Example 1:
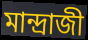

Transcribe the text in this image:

মান্দ্রাজী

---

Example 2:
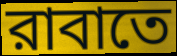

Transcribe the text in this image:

রাবাতে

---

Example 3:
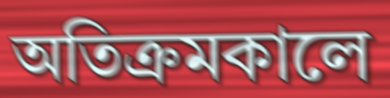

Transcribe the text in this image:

অতিক্রমকালে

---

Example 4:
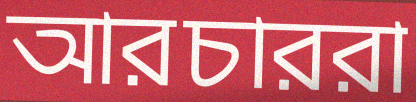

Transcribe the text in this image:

আরচাররা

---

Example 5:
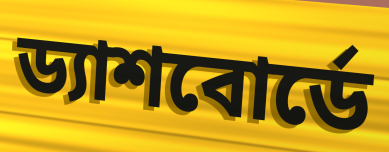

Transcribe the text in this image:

ড্যাশবোর্ডে